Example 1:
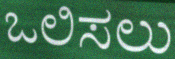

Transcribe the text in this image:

ಒಲಿಸಲು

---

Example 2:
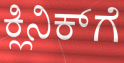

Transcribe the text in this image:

ಕ್ಲಿನಿಕ್‍ಗೆ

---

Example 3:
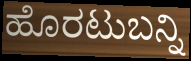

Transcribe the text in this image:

ಹೊರಟುಬನ್ನಿ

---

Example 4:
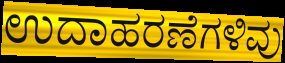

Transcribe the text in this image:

ಉದಾಹರಣೆಗಳಿವು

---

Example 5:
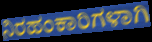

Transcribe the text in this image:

ನಿರಹಂಕಾರಿಗಳಾಗಿ